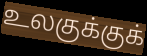
உலகுக்குக்